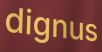
dignus